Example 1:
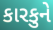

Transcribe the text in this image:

કારકુને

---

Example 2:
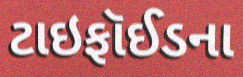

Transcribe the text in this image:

ટાઇફૉઈડના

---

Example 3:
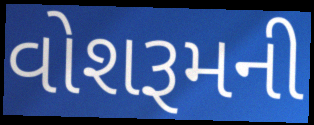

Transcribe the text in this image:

વોશરૂમની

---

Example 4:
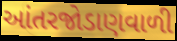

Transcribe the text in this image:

આંતરજોડાણવાળી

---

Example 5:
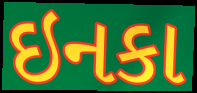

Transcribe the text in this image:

ઇનકા